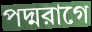
পদ্মরাগে